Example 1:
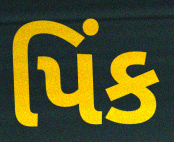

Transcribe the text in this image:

પિંક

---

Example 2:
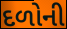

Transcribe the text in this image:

દળોની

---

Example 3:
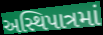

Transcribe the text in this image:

અસ્થિપાત્રમાં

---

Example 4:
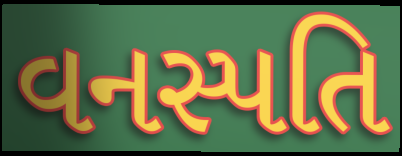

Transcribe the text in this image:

વનસ્પતિ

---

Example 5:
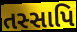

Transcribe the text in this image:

તસ્સાપિ